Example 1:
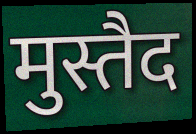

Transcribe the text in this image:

मुस्तैद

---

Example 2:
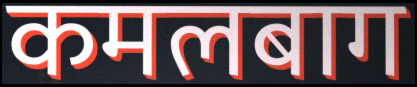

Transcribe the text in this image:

कमलबाग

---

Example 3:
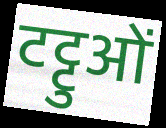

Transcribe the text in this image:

टट्टुओं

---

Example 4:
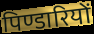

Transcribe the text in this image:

पिण्डारियों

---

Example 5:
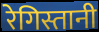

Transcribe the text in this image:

रेगिस्तानी